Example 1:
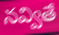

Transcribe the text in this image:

నవ్వితే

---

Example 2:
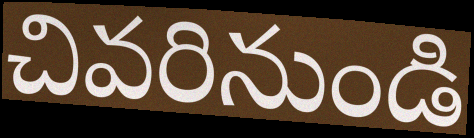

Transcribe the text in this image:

చివరినుండి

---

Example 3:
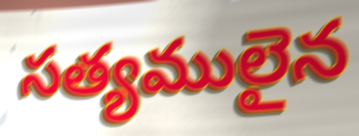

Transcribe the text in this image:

సత్యములైన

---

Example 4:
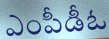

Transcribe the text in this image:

ఎంపీడీఓ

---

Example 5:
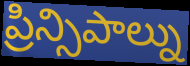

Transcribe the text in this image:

ప్రిన్సిపాల్ను